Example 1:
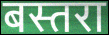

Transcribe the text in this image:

बस्तरा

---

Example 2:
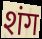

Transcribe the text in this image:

शंग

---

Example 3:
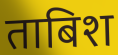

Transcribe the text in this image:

ताबिश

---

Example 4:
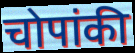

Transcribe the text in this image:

चोपांकी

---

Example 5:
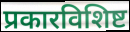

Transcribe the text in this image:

प्रकारविशिष्ट